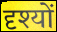
दृश्यों